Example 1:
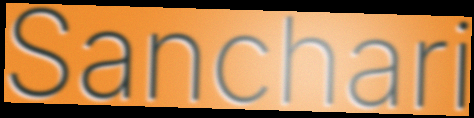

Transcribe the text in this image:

Sanchari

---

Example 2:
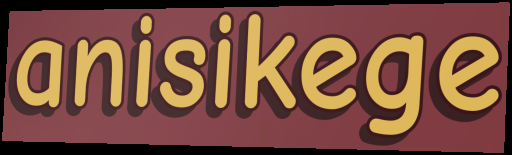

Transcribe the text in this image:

anisikege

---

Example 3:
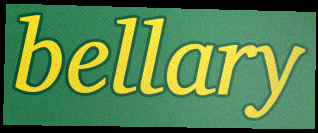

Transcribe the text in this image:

bellary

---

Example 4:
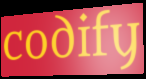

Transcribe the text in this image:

codify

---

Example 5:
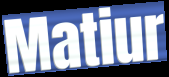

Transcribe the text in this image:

Matiur